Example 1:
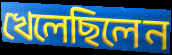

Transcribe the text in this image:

খেলেছিলেন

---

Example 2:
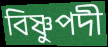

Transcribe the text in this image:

বিষ্ণুপদী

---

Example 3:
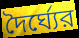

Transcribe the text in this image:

দৈর্ঘ্যের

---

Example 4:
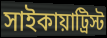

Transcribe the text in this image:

সাইকায়াট্রিস্ট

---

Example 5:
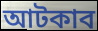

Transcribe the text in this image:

আটকাব